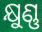
କ୍ଷୁଣ୍ଣ